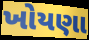
ખોયણા